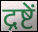
द्रष्टें